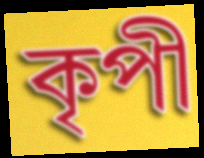
কৃপী